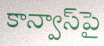
కాన్వాస్‌పై